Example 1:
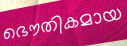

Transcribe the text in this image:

ഭൌതികമായ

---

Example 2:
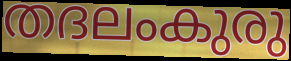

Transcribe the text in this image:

തദലംകുരു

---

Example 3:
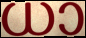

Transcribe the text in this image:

ധാ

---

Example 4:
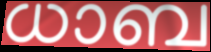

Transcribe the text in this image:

ധാബ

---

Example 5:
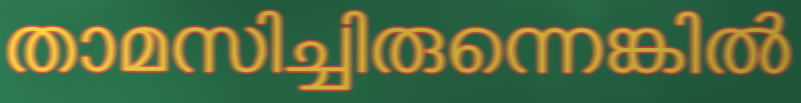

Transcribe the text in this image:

താമസിച്ചിരുന്നെങ്കിൽ